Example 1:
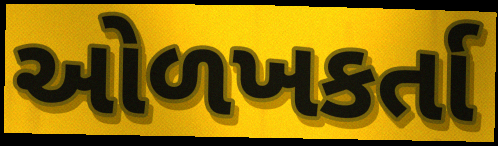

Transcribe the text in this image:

ઓળખકર્તા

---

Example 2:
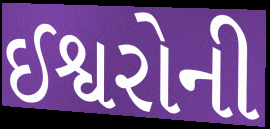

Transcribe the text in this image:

ઈશ્વરોની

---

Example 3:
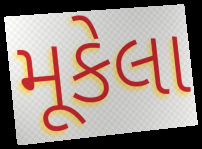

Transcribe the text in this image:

મૂકેલા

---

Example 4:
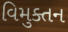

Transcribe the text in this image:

વિમુક્તન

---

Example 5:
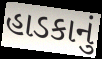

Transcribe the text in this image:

હાડકાનું